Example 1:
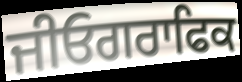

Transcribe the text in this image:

ਜੀਓਗਰਾਫਿਕ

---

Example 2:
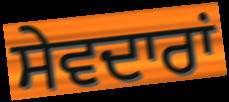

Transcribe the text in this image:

ਸੇਵਦਾਰਾਂ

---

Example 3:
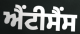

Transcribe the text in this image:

ਐਂਟੀਸੈਂਸ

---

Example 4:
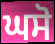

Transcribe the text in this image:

ਘਸੋ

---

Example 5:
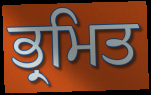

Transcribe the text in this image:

ਭ੍ਰਮਿਤ